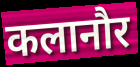
कलानौर